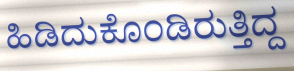
ಹಿಡಿದುಕೊಂಡಿರುತ್ತಿದ್ದ